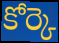
కోర్కె